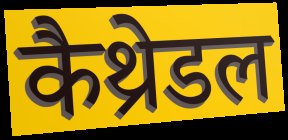
कैथ्रेडल